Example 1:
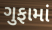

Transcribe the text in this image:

ગુફામાં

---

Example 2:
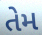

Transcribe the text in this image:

તેમ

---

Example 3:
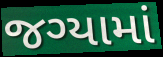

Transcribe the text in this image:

જગ્યામાં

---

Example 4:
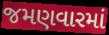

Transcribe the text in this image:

જમણવારમાં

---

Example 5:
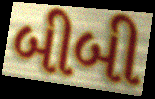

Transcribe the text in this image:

બીબી